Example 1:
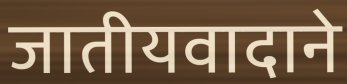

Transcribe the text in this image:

जातीयवादाने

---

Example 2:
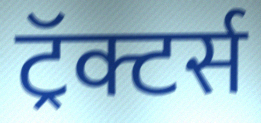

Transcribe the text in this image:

ट्रॅक्टर्स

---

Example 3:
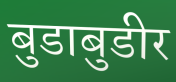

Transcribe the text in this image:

बुडाबुडीर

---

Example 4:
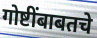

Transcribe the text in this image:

गोष्टींबाबतचे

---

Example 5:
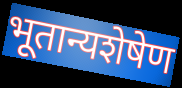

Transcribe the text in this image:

भूतान्यशेषेण